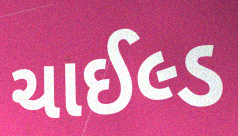
ચાઈલ્ડ